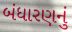
બંધારણનું